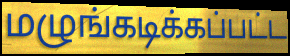
மழுங்கடிக்கப்பட்ட